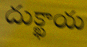
దుక్ఖాయ